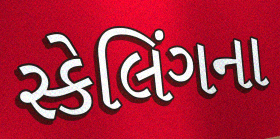
સ્કેલિંગના